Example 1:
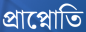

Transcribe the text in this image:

প্রাপ্নোতি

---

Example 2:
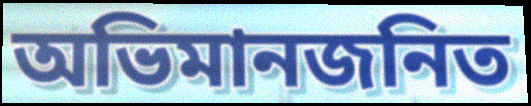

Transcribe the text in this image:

অভিমানজনিত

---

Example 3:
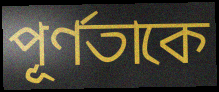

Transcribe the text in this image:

পূর্ণতাকে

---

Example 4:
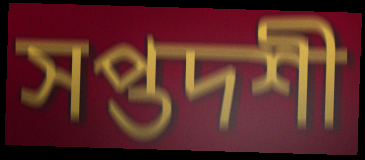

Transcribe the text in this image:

সপ্তদশী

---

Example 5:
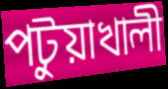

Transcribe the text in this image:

পটুয়াখালী